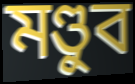
মণ্ডুব